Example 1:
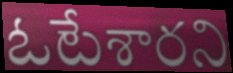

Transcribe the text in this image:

ఓటేశారని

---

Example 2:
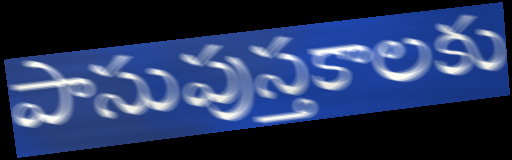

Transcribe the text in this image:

పాసుపుస్తకాలకు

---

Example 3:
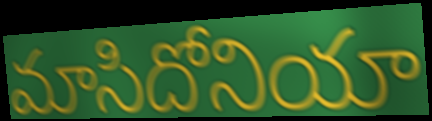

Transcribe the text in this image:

మాసిదోనియా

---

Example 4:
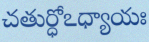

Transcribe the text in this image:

చతుర్ధోఽధ్యాయః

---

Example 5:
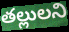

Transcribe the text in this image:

తల్లులని